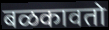
बळकावतो